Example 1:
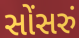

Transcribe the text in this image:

સોંસરું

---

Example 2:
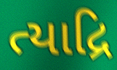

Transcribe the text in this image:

ત્યાદ્રિ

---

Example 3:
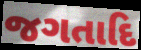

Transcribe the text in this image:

જગતાદિ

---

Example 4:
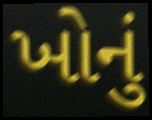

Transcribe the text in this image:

ખોનું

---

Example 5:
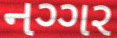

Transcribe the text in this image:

નગ્ગર